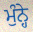
ਮੁੰਨ੍ਹੇ